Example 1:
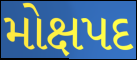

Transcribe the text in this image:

મોક્ષપદ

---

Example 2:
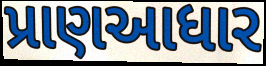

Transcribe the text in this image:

પ્રાણઆધાર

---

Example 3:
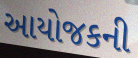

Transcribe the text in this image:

આયોજકની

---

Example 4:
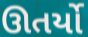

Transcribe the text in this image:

ઊતર્યો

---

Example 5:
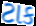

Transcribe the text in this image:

ટાક